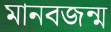
মানবজন্ম